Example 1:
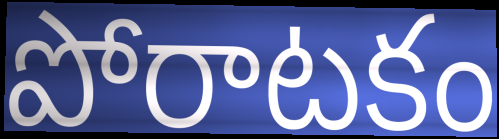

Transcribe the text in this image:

పోరాటకం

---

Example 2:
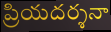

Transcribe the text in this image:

ప్రియదర్శనా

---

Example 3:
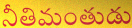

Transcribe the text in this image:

నీతిమంతుడు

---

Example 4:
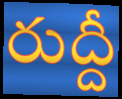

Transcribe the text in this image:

రుద్దీ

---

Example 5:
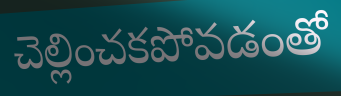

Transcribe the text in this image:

చెల్లించకపోవడంతో